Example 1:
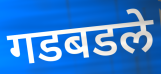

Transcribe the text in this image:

गडबडले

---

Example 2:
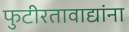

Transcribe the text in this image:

फुटीरतावाद्यांना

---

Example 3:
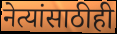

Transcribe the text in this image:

नेत्यांसाठीही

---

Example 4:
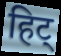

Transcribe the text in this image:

हिट्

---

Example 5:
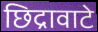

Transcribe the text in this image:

छिद्रावाटे